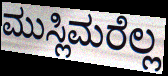
ಮುಸ್ಲಿಮರೆಲ್ಲ